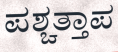
ಪಶ್ಚತ್ತಾಪ